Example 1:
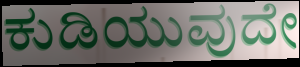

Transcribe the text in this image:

ಕುಡಿಯುವುದೇ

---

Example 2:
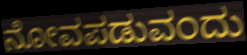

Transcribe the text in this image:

ನೋವಪಡುವಂದು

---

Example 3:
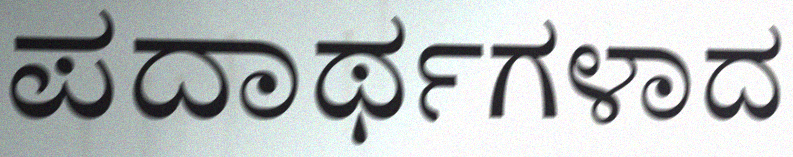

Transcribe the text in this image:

ಪದಾರ್ಥಗಳಾದ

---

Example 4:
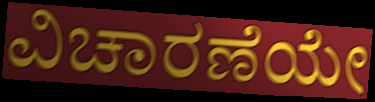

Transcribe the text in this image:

ವಿಚಾರಣೆಯೇ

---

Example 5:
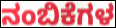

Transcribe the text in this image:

ನಂಬಿಕೆಗಳ